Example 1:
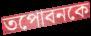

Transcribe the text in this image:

তপোবনকে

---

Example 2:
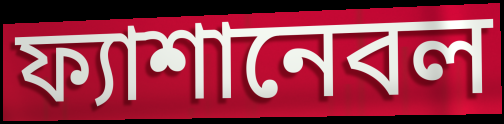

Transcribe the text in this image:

ফ্যাশানেবল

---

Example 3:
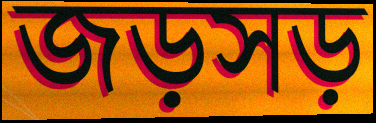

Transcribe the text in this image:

জড়সড়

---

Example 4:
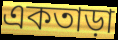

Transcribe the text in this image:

একতাড়া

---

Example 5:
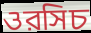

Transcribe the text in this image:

ওরসিচ